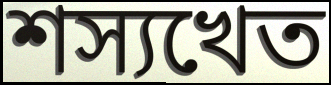
শস্যখেত